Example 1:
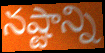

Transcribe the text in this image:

నష్టాన్ని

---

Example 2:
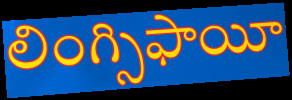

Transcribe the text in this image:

లింగ్సిఫాయీ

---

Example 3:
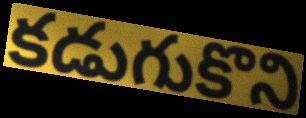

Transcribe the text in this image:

కడుగుకొని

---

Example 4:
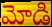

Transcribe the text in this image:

మోడి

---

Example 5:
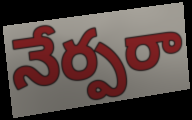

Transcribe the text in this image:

నేర్పరా